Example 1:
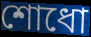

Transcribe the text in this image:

শোধো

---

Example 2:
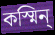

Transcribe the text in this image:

কস্মিন্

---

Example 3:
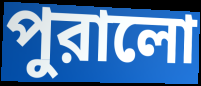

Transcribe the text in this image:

পুরালো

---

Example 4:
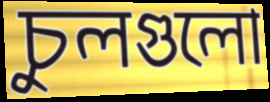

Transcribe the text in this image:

চুলগুলো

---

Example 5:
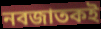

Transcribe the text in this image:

নবজাতকই